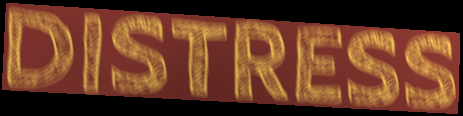
DISTRESS